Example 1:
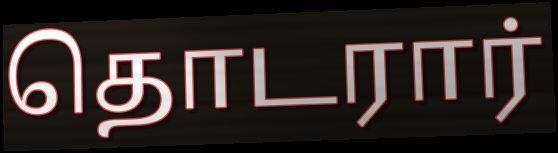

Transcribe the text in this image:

தொடரார்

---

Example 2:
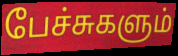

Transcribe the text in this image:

பேச்சுகளும்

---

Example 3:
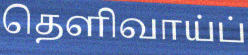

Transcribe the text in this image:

தெளிவாய்ப்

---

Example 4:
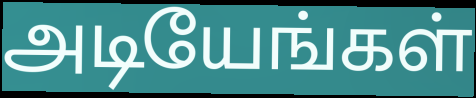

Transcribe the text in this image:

அடியேங்கள்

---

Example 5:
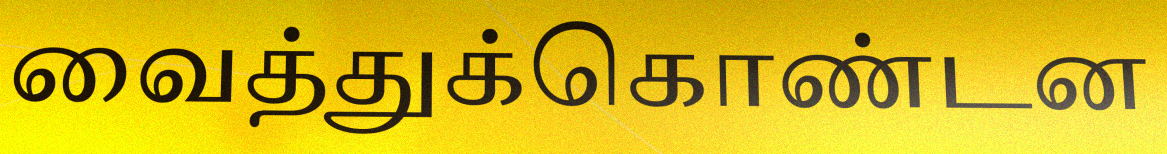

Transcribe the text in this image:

வைத்துக்கொண்டன